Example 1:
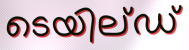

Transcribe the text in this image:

ടെയില്ഡ്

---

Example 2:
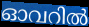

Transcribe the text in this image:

ഓവറിൽ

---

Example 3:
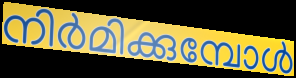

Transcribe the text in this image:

നിർമിക്കുമ്പോൾ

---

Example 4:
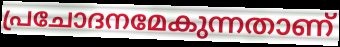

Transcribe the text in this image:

പ്രചോദനമേകുന്നതാണ്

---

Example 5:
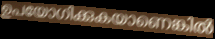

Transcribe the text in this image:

ഉപയോഗിക്കുകയാണെങ്കിൽ